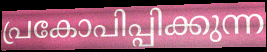
പ്രകോപിപ്പിക്കുന്ന